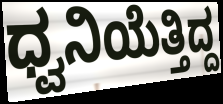
ಧ್ವನಿಯೆತ್ತಿದ್ದ